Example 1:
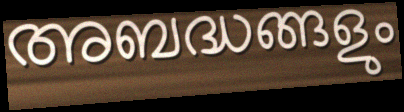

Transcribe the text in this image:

അബദ്ധങ്ങളും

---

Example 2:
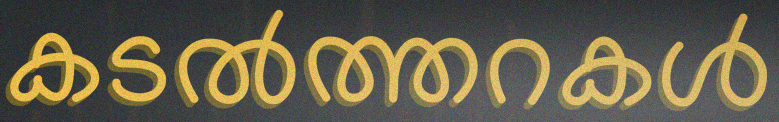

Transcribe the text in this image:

കടൽത്തറകൾ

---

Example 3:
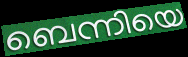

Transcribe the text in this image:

ബെന്നിയെ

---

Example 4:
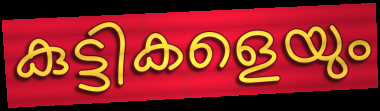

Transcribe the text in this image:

കുട്ടികളെയും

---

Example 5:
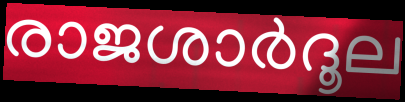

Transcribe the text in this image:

രാജശാർദൂല